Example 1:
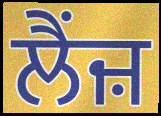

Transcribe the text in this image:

ਲੈਂਜ਼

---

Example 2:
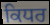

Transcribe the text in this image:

ਕਿਧਰ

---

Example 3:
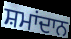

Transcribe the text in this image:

ਸ਼ਮਾਂਦਾਨ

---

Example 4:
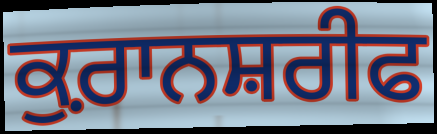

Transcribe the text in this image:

ਕ਼ੁਰਾਨਸ਼ਰੀਫ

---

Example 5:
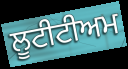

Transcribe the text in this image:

ਲੂਟੀਟੀਅਮ